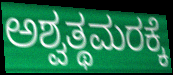
ಅಶ್ವತ್ಥಮರಕ್ಕೆ